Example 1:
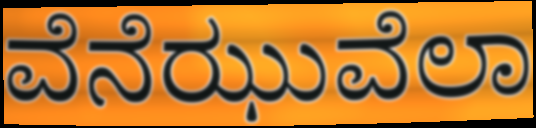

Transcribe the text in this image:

ವೆನೆಝುವೆಲಾ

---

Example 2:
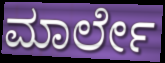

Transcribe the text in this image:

ಮಾರ್ಲೇ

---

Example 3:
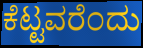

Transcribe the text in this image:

ಕೆಟ್ಟವರೆಂದು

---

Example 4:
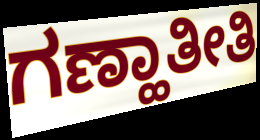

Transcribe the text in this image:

ಗಣ್ಹಾತೀತಿ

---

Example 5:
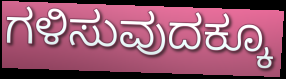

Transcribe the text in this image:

ಗಳಿಸುವುದಕ್ಕೂ